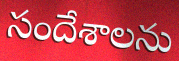
సందేశాలను